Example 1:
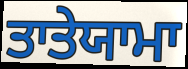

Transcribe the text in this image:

ਤਾਤੇਯਾਮਾ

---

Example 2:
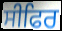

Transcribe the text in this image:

ਸੀਫਿਰ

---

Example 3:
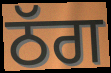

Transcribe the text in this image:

ਠੱਗ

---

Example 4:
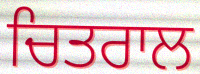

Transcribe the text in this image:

ਚਿਤਰਾਲ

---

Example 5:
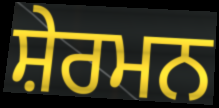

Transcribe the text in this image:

ਸ਼ੇਰਮਨ